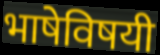
भाषेविषयी